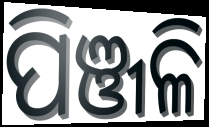
ପିଞ୍ଜଳି